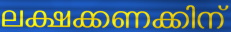
ലക്ഷക്കണക്കിന്